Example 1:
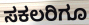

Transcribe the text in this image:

ಸಕಲರಿಗೂ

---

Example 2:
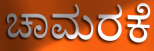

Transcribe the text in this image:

ಚಾಮರಕೆ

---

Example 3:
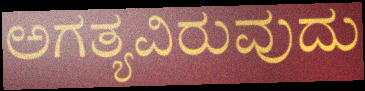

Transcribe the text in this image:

ಅಗತ್ಯವಿರುವುದು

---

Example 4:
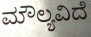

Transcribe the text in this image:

ಮೌಲ್ಯವಿದೆ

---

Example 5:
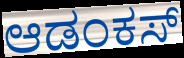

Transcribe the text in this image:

ಆಡಂಕಸ್